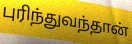
புரிந்துவந்தான்